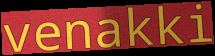
venakki